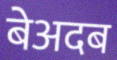
बेअदब